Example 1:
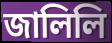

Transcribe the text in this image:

জালিলি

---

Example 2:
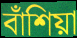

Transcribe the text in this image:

বাঁশিয়া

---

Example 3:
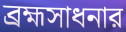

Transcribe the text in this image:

ব্রহ্মসাধনার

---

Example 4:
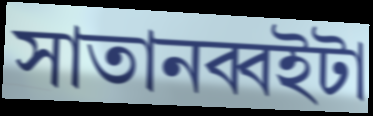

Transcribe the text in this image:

সাতানব্বইটা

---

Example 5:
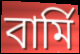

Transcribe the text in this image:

বার্মি